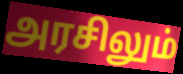
அரசிலும்